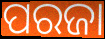
ପରଜା